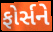
ફોર્સને